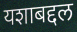
यशाबद्दल